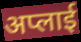
अप्लाई